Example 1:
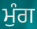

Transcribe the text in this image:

ਮੁੰਗ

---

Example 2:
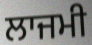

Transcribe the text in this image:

ਲਾਜਮੀ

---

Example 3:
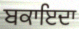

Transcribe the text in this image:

ਬਕਾਇਦਾ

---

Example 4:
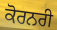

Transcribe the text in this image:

ਕੋਰਨਰੀ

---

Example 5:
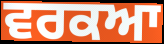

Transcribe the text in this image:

ਵਰਕਆ